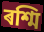
ৰশ্মি